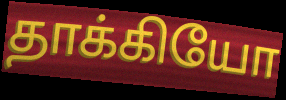
தாக்கியோ